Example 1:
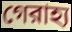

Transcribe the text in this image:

গেরাহ্য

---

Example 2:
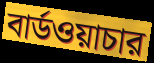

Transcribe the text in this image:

বার্ডওয়াচার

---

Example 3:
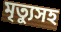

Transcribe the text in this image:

মৃত্যুসহ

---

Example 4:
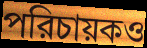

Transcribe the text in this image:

পরিচায়কও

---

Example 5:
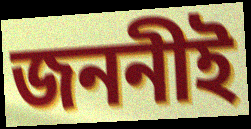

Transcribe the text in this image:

জননীই